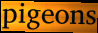
pigeons